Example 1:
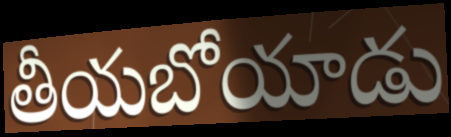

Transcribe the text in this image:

తీయబోయాడు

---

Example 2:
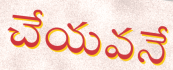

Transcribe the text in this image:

చేయవనే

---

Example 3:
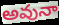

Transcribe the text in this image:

అవునా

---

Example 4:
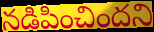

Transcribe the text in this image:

నడిపించిందని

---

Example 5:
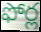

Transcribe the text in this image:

ఫోర్ల